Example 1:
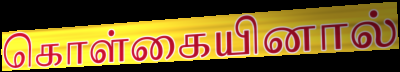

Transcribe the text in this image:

கொள்கையினால்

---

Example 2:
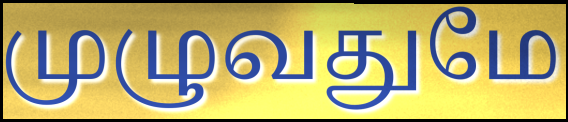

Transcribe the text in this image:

முழுவதுமே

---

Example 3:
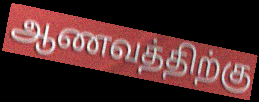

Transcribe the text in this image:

ஆணவத்திற்கு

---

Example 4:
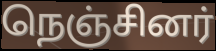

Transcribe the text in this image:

நெஞ்சினர்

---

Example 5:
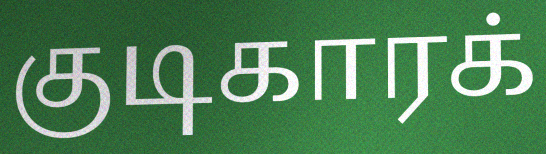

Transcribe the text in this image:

குடிகாரக்